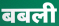
बबली